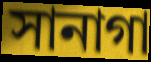
সানাগা